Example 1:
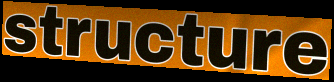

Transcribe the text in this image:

structure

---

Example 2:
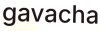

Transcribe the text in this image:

gavacha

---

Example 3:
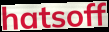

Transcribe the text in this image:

hatsoff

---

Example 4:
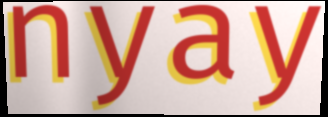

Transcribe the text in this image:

nyay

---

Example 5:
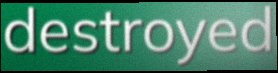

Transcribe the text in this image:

destroyed